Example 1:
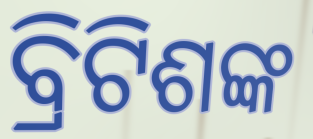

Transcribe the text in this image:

ବ୍ରିଟିଶଙ୍କ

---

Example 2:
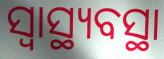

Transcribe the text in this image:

ସ୍ଵାସ୍ଥ୍ୟବସ୍ଥା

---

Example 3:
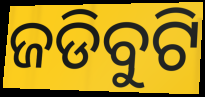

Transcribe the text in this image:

ଜଡିବୁଟି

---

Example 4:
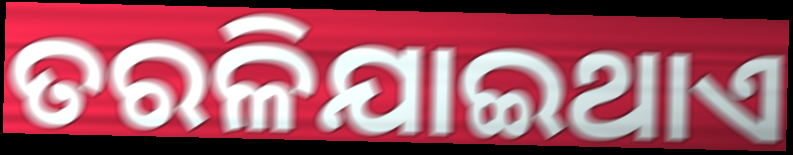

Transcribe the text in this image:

ତରଳିଯାଇଥାଏ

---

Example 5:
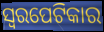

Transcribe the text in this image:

ସ୍ଵରପେଟିକାର